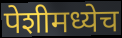
पेशीमध्येच